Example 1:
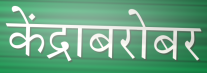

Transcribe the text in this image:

केंद्राबरोबर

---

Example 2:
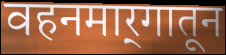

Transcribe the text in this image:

वहनमार्गातून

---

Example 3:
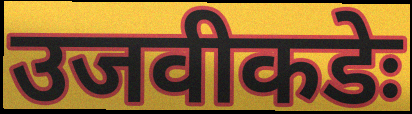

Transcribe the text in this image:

उजवीकडेः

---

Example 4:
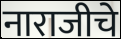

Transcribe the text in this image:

नाराजीचे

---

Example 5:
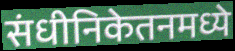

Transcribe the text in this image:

संधीनिकेतनमध्ये